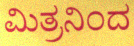
ಮಿತ್ರನಿಂದ